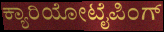
ಕ್ಯಾರಿಯೋಟೈಪಿಂಗ್